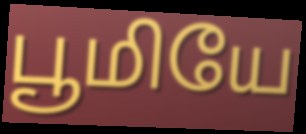
பூமியே